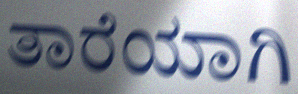
ತಾರೆಯಾಗಿ